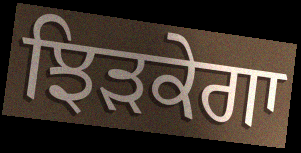
ਝਿੜਕੇਗਾ